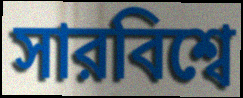
সারবিশ্বে